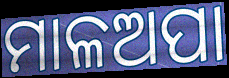
ମାଳଅପା